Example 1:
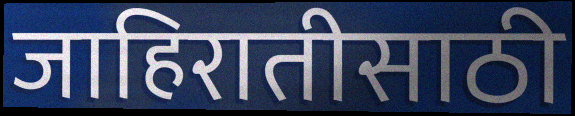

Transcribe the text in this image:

जाहिरातीसाठी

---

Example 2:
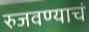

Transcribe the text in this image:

रुजवण्याचं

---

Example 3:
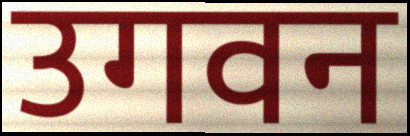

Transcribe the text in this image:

उगवन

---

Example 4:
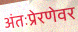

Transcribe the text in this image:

अंतःप्रेरणेवर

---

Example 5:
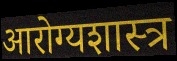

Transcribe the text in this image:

आरोग्यशास्त्र